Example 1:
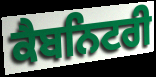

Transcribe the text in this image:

ਕੈਬਨਿਟਰੀ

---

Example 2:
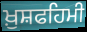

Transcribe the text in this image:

ਖ਼ੁਸ਼ਫਹਿਮੀ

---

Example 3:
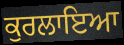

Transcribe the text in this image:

ਕੁਰਲਾਇਆ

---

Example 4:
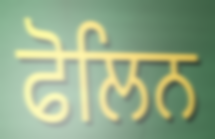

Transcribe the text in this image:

ਫੋਲਿਨ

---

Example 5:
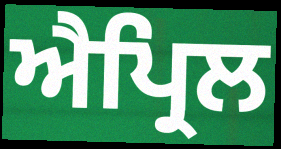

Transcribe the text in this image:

ਐਪ੍ਰਿਲ